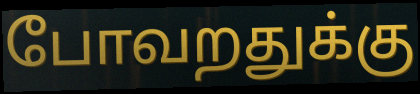
போவறதுக்கு